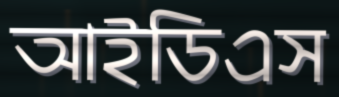
আইডিএস